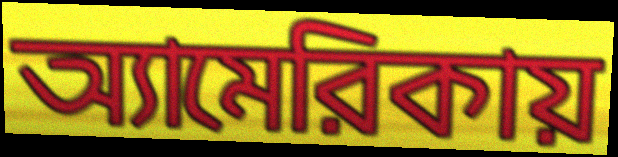
অ্যামেরিকায়